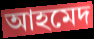
আহমেদ